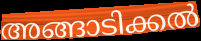
അങ്ങാടിക്കൽ